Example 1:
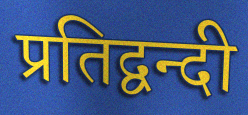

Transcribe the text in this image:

प्रतिद्वन्दी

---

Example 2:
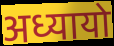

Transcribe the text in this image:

अध्यायो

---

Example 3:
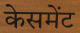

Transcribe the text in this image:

केसमेंट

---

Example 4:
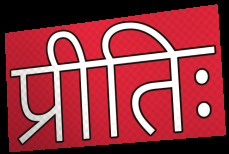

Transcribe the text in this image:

प्रीतिः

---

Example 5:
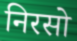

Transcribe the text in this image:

निरसो